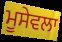
ਮੂਸੇਵਲਾ